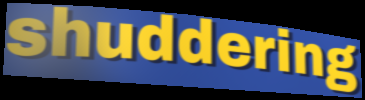
shuddering